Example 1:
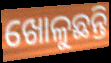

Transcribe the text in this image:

ଖୋଳୁଛନ୍ତି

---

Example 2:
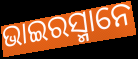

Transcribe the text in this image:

ଭାଇରସ୍ମାନେ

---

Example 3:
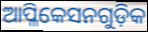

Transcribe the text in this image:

ଆପ୍ଳିକେସନଗୁଡ଼ିକ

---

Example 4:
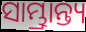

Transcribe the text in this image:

ସାମ୍ଭ୍ରାନ୍ତ୍ୟ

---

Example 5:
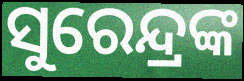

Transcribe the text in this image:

ସୁରେନ୍ଦ୍ରଙ୍କ